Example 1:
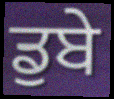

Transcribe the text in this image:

ਡੁਬੇ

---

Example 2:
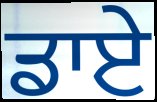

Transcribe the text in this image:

ਡਾਏ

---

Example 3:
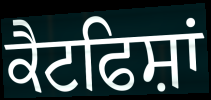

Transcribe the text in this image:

ਕੈਟਫਿਸ਼ਾਂ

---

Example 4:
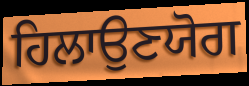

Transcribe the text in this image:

ਹਿਲਾਉਣਯੋਗ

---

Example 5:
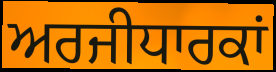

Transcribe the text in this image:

ਅਰਜੀਧਾਰਕਾਂ